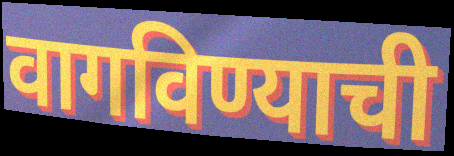
वागविण्याची